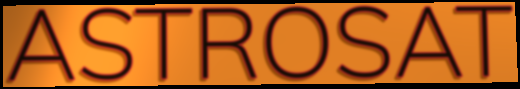
ASTROSAT